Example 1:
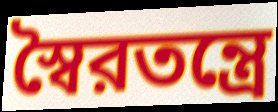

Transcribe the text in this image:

স্বৈরতন্ত্রে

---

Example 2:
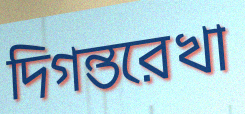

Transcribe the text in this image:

দিগন্তরেখা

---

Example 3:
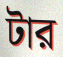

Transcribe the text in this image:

টার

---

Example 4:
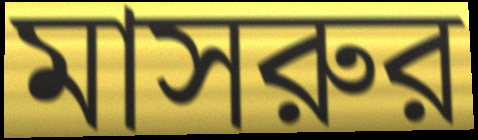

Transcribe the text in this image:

মাসরুর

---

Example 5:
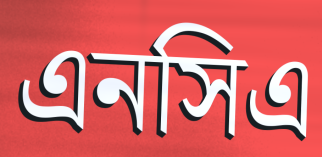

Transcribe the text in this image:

এনসিএ